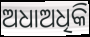
ଅଧାଅଧିକି